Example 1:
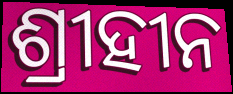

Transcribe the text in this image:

ଶ୍ରୀହୀନ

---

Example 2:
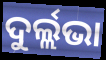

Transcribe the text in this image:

ଦୁର୍ଲ୍ଲଭା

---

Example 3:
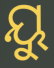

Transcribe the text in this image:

ୟୁ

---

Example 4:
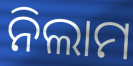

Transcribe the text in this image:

ନିଲାମ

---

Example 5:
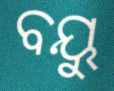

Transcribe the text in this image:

ବୟୁ